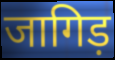
जागिड़